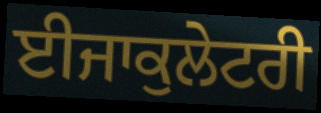
ਈਜਾਕੁਲੇਟਰੀ